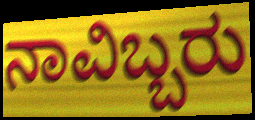
ನಾವಿಬ್ಬರು